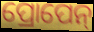
ପ୍ରୋପେନ୍